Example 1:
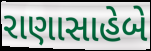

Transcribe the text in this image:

રાણાસાહેબે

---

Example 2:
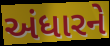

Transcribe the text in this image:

અંધારને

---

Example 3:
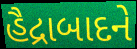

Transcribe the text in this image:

હૈદ્રાબાદને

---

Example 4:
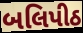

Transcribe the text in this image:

બલિપીઠ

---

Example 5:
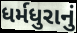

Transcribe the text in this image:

ધર્મધુરાનું